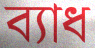
ব্যাধ